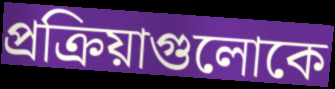
প্রক্রিয়াগুলোকে